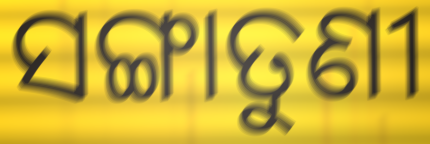
ସଙ୍ଗାତୁଣୀ